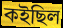
কইছিল